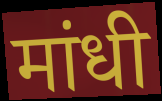
मांधी